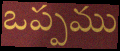
ఒప్పము